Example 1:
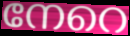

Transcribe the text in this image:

നേറെ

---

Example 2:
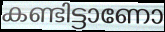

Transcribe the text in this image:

കണ്ടിട്ടാണോ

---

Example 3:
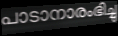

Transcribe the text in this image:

പാടാനാരംഭിച്ചു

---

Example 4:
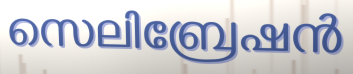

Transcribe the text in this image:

സെലിബ്രേഷൻ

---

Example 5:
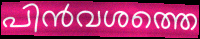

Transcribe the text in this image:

പിൻവശത്തെ